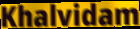
Khalvidam